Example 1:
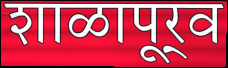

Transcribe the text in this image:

शाळापूर्व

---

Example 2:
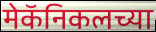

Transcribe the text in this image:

मेकॅनिकलच्या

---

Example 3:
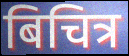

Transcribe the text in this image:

बिचित्र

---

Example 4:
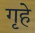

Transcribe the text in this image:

गृहे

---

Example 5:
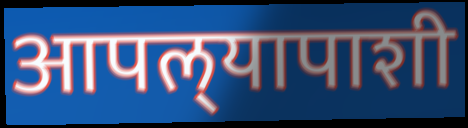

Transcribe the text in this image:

आपल्यापाशी